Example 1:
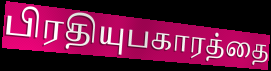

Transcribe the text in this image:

பிரதியுபகாரத்தை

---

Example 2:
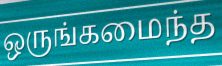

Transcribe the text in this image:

ஒருங்கமைந்த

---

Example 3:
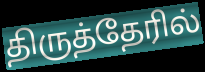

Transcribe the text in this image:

திருத்தேரில்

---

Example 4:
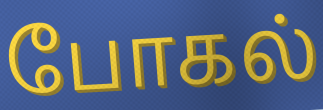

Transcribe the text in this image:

போகல்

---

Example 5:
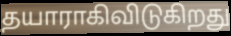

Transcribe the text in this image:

தயாராகிவிடுகிறது